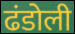
ढंडोली